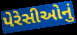
પેરેસીઓનું